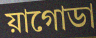
য়াগোডা